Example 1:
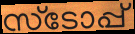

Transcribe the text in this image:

സ്ടോപ്പ്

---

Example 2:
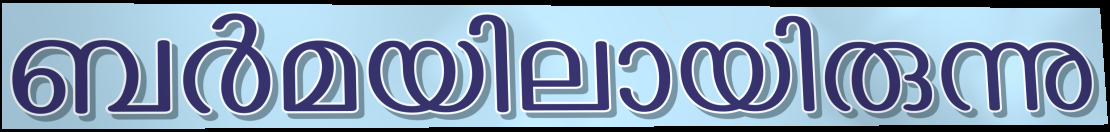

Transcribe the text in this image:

ബർമയിലായിരുന്നു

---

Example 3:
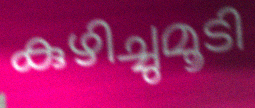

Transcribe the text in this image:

കുഴിച്ചുമൂടി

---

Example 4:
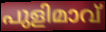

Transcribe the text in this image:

പുളിമാവ്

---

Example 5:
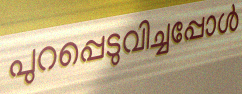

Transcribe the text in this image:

പുറപ്പെടുവിച്ചപ്പോൾ